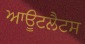
ਆਊਟਲੈਟਸ